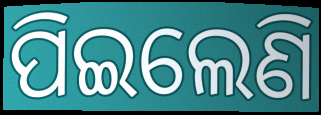
ପିଇଲେଣି